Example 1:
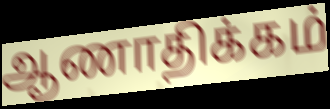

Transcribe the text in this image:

ஆணாதிக்கம்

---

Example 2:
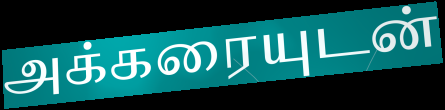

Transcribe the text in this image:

அக்கரையுடன்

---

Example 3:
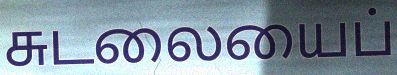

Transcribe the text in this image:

சுடலையைப்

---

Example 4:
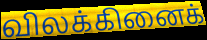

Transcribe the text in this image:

விலக்கினைக்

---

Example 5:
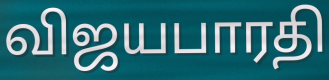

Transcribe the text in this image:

விஜயபாரதி